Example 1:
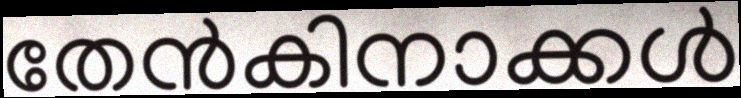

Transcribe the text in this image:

തേൻകിനാക്കൾ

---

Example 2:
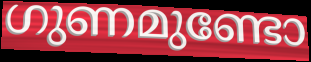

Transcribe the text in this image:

ഗുണമുണ്ടോ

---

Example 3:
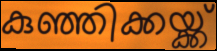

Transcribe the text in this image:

കുഞ്ഞിക്കയ്ക്ക്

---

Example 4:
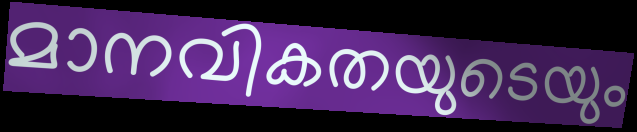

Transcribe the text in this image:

മാനവികതയുടെയും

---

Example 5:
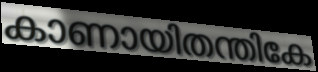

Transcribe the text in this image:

കാണായിതന്തികേ